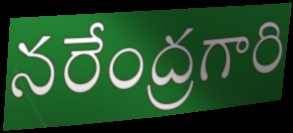
నరేంద్రగారి